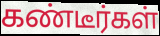
கண்டீர்கள்